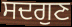
ਸਦਗੁਣ